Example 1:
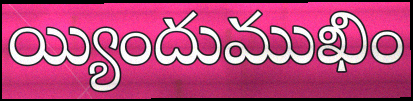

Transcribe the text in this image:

య్యిందుముఖిం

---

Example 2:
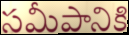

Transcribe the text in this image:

సమీపానికి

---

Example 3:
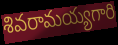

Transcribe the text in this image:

శివరామయ్యగారి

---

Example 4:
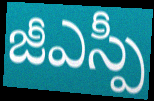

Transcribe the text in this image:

జీఎస్పీ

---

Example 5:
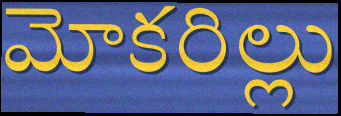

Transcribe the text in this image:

మోకరిల్లు